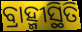
ବ୍ରାହ୍ମୀସ୍ଥିତି